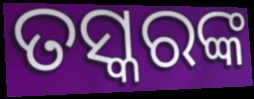
ତସ୍କରଙ୍କ